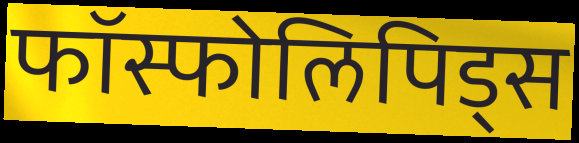
फॉस्फोलिपिड्स